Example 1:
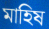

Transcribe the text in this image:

মাহিষ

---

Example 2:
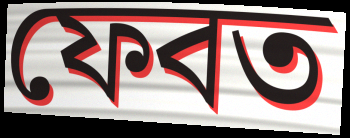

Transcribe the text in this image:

ফেবত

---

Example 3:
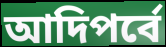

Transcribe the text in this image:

আদিপর্বে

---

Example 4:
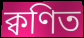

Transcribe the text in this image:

ক্বণিত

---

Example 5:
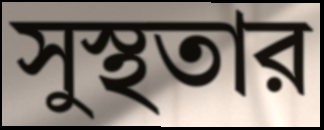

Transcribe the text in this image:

সুস্থতার